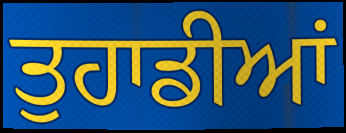
ਤੁਹਾਡੀਆਂ